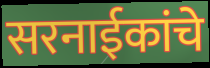
सरनाईकांचे